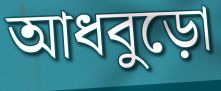
আধবুড়ো